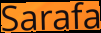
Sarafa